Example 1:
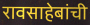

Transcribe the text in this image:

रावसाहेबांची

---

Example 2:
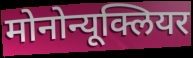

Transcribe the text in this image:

मोनोन्यूक्लियर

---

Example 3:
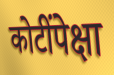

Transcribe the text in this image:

कोटींपेक्षा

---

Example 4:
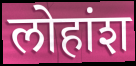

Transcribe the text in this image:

लोहांश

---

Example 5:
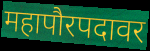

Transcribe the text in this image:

महापौरपदावर